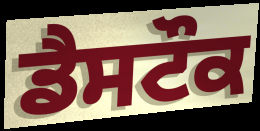
ਡੈਸਟੌਕ